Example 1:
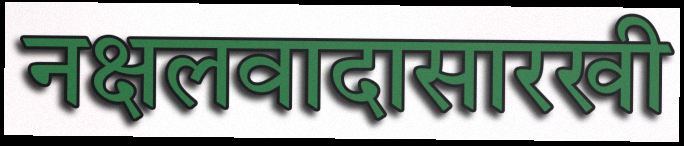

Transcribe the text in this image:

नक्षलवादासारखी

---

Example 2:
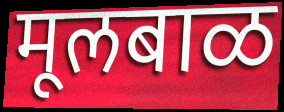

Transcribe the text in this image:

मूलबाळ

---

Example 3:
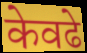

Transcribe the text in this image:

केवढे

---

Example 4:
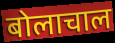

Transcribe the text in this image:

बोलाचाल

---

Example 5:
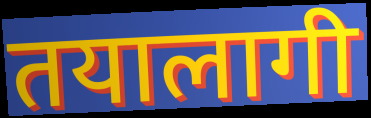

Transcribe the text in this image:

तयालागी